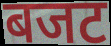
बजट